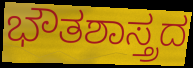
ಭೌತಶಾಸ್ತ್ರದ